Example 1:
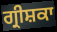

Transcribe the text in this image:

ਗ੍ਰੀਸ਼ਕਾ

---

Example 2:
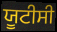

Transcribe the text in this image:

ਯੂਟੀਸੀ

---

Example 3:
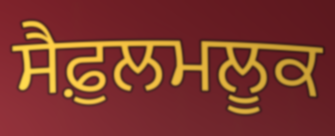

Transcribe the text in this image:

ਸੈਫ਼ੁਲਮਲੂਕ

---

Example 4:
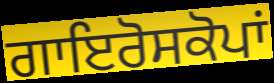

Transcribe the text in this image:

ਗਾਇਰੋਸਕੋਪਾਂ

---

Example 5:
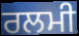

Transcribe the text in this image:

ਰਲਮੀ